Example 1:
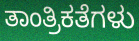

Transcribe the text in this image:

ತಾಂತ್ರಿಕತೆಗಳು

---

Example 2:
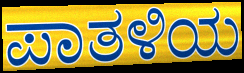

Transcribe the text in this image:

ಪಾತಳಿಯ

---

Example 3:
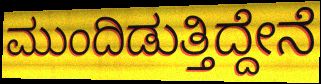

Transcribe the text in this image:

ಮುಂದಿಡುತ್ತಿದ್ದೇನೆ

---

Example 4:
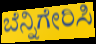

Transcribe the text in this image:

ಬೆನ್ನಿಗೇರಿಸಿ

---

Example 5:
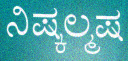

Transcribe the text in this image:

ನಿಷ್ಕಲ್ಮಷ